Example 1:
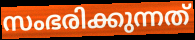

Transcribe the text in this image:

സംഭരിക്കുന്നത്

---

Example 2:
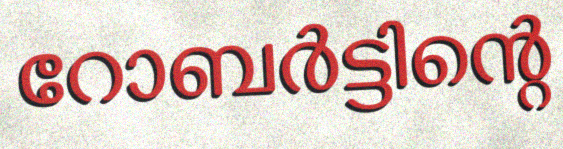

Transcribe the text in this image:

റോബർട്ടിന്റെ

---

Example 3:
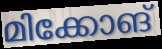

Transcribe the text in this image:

മിക്കോങ്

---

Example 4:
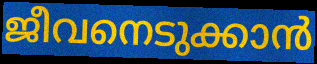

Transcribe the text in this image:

ജീവനെടുക്കാൻ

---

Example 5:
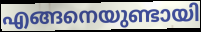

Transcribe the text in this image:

എങ്ങനെയുണ്ടായി